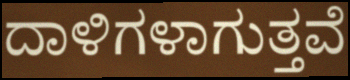
ದಾಳಿಗಳಾಗುತ್ತವೆ